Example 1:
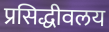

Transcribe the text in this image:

प्रसिद्धीवलय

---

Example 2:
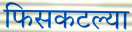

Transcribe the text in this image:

फिसकटल्या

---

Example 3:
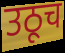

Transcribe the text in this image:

उठूच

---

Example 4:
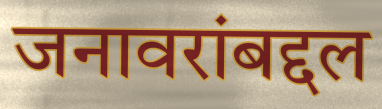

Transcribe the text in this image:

जनावरांबद्दल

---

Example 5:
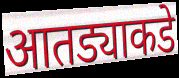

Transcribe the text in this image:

आतड्याकडे